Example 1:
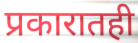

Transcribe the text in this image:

प्रकारातही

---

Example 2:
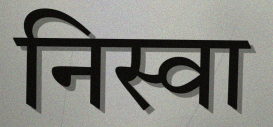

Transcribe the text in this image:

निस्वा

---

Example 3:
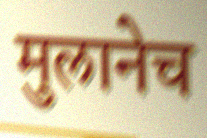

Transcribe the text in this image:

मुलानेच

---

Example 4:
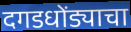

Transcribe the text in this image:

दगडधोंड्याचा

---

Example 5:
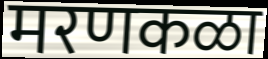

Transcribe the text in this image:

मरणकळा